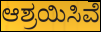
ಆಶ್ರಯಿಸಿವೆ